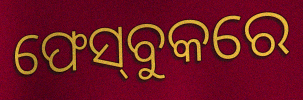
ଫେସ୍‌ବୁକରେ